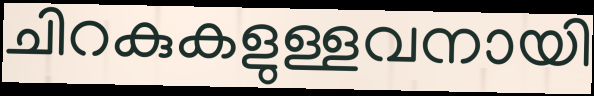
ചിറകുകളുള്ളവനായി